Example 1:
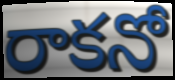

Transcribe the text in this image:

రాకనో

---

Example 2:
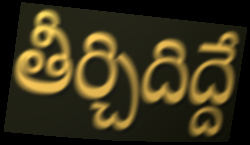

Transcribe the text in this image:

తీర్చిదిద్దే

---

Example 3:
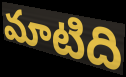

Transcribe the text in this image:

మాటిది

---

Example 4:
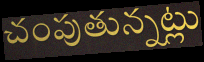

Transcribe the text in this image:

చంపుతున్నట్లు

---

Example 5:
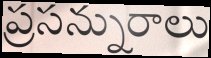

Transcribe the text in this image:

ప్రసన్నురాలు